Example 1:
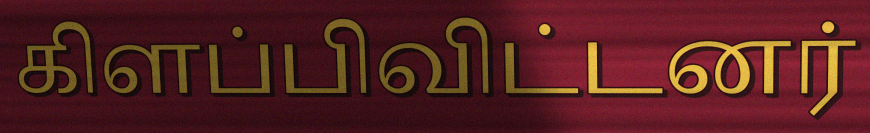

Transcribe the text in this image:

கிளப்பிவிட்டனர்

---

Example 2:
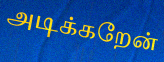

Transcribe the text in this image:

அடிக்கறேன்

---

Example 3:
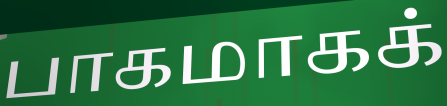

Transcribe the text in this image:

பாகமாகக்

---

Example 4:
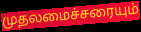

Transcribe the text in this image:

முதலமைச்சரையும்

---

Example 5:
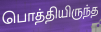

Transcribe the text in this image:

பொத்தியிருந்த